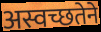
अस्वच्छतेने